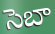
సెబా